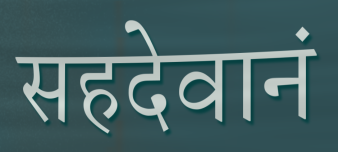
सहदेवानं